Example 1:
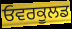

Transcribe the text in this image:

ਓਵਰਕੂਲਡ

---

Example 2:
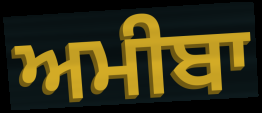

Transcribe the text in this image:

ਅਮੀਬਾ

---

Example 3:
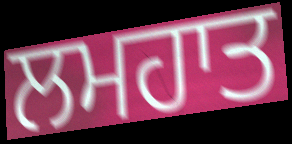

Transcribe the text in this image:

ਲਮਹਾਤ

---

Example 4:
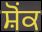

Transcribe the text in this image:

ਸ਼ੋਂਕ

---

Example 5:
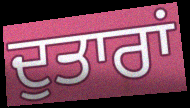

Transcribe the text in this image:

ਦੁਤਾਰਾਂ